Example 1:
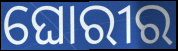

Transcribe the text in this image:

ଘୋରୀର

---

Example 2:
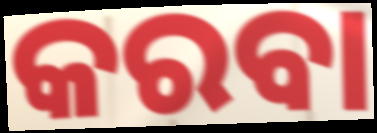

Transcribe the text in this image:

କରବା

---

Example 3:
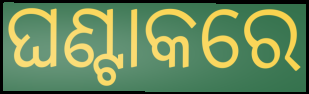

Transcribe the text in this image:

ଘଣ୍ଟାକରେ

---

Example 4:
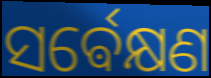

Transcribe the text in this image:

ସର୍ଵେକ୍ଷଣ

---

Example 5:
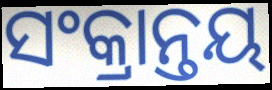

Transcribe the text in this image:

ସଂକ୍ରାନ୍ତୟ